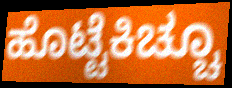
ಹೊಟ್ಟೆಕಿಚ್ಚೂ